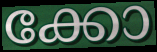
ക്കോ